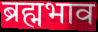
ब्रह्मभाव